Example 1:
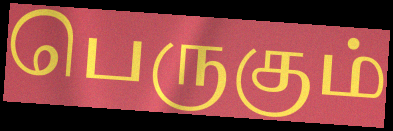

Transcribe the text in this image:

பெருகும்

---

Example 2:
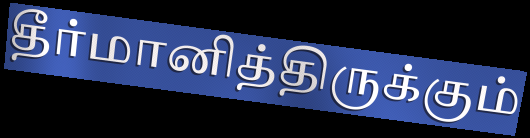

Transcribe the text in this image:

தீர்மானித்திருக்கும்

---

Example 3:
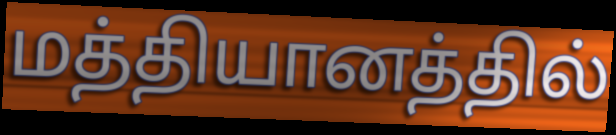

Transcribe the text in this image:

மத்தியானத்தில்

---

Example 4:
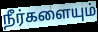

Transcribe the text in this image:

நீர்களையும்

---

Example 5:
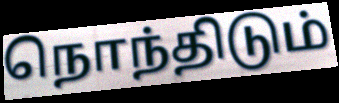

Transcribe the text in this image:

நொந்திடும்